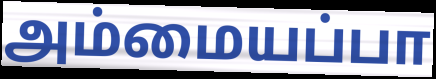
அம்மையப்பா